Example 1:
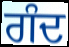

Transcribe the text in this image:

ਗੰਦ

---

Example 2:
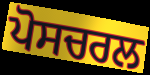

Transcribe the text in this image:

ਪੋਸਚਰਲ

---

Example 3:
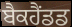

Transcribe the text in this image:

ਬੈਕਹੈਂਡਡ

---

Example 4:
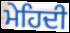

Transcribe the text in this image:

ਮੇਹਿਦੀ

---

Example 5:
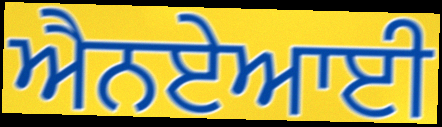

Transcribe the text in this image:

ਐਨਏਆਈ